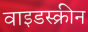
वाइडस्क्रीन